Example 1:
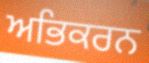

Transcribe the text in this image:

ਅਭਿਕਰਨ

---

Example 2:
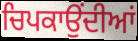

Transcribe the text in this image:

ਚਿਪਕਾਉਂਦੀਆਂ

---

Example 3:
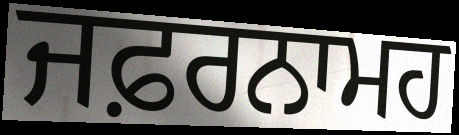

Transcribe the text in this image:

ਜਫ਼ਰਨਾਮਹ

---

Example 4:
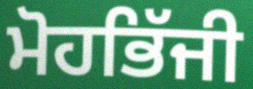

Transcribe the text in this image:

ਮੋਹਭਿੱਜੀ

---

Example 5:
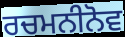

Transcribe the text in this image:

ਰਚਮਨੀਨੋਵ